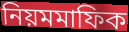
নিয়মমাফিক